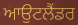
ਆਉਟਲੈਂਡਰ